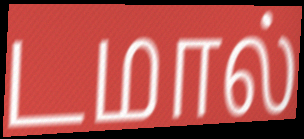
டமால்